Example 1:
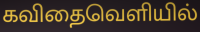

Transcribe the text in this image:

கவிதைவெளியில்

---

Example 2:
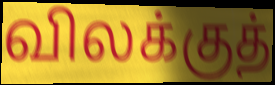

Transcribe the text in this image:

விலக்குத்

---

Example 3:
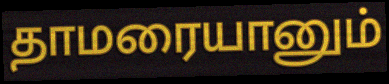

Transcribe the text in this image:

தாமரையானும்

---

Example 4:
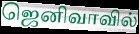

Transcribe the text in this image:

ஜெனிவாவில்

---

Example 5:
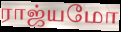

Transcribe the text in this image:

ராஜ்யமோ